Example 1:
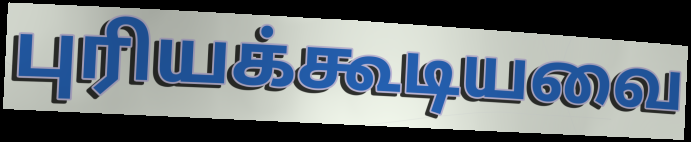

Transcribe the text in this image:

புரியக்கூடியவை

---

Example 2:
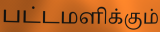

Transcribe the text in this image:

பட்டமளிக்கும்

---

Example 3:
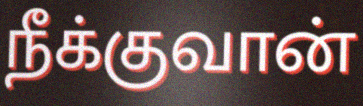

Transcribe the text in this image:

நீக்குவான்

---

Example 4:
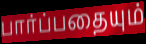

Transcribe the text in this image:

பார்ப்பதையும்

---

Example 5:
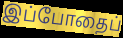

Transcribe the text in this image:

இப்போதைப்